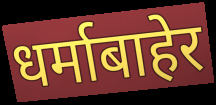
धर्माबाहेर